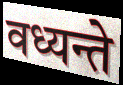
वध्यन्ते